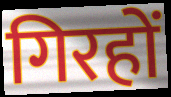
गिरहों